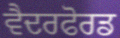
ਵੈਦਰਫੋਰਡ